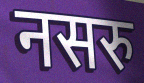
नसरु